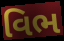
વિભ